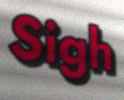
Sigh